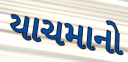
યાચમાનો